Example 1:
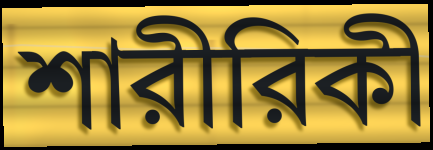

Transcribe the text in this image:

শারীরিকী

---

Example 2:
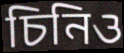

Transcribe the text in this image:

চিনিও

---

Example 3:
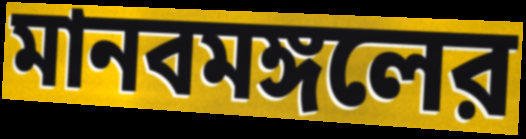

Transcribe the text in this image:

মানবমঙ্গলের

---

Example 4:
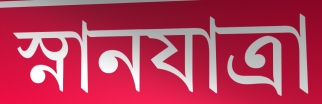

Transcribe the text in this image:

স্নানযাত্রা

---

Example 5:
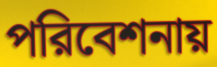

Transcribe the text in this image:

পরিবেশনায়